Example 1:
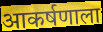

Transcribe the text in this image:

आकर्षणाला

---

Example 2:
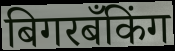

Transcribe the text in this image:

बिगरबँकिंग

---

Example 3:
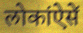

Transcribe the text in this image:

लोकांऐसें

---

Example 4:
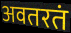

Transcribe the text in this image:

अवतरतं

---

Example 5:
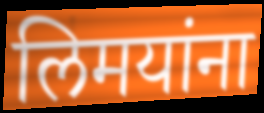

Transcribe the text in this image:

लिमयांना